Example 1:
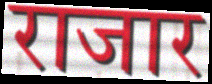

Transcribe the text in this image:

राजार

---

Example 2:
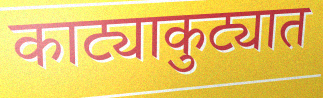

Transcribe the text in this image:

काट्याकुट्यात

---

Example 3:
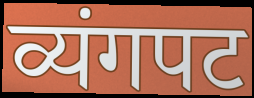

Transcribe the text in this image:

व्यंगपट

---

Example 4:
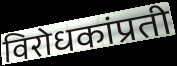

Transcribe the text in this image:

विरोधकांप्रती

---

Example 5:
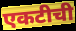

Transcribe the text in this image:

एकटीची